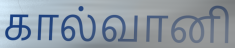
கால்வானி